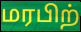
மரபிற்